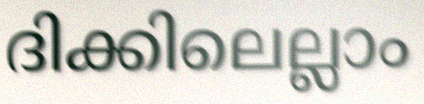
ദിക്കിലെല്ലാം